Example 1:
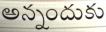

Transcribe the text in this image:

అన్నందుకు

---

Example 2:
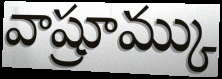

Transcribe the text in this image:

వాష్రూమ్కు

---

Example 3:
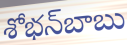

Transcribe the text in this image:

శోభన్‌బాబు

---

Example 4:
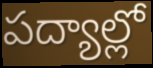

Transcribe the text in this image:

పద్యాల్లో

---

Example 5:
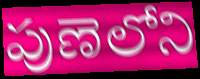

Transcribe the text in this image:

పుణెలోని